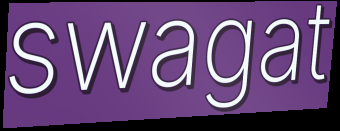
swagat